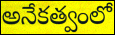
అనేకత్వంలో